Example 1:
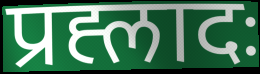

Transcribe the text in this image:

प्रह्लादः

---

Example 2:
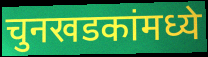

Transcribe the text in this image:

चुनखडकांमध्ये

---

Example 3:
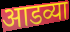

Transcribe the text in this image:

आडव्या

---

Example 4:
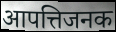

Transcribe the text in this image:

आपत्तिजनक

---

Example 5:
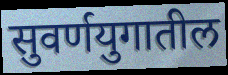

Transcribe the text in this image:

सुवर्णयुगातील